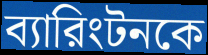
ব্যারিংটনকে